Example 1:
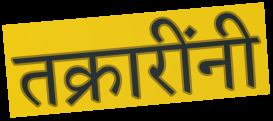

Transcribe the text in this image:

तक्रारींनी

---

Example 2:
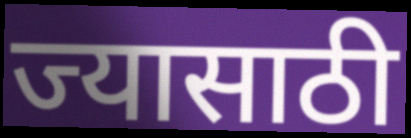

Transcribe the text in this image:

ज्यासाठी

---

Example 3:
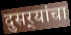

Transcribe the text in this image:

दुसर्यांचा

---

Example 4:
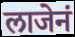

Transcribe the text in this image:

लाजेनं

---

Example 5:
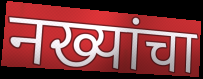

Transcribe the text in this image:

नख्यांचा